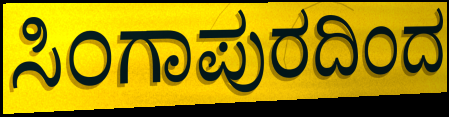
ಸಿಂಗಾಪುರದಿಂದ